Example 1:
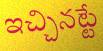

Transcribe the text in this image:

ఇచ్చినట్టే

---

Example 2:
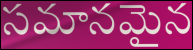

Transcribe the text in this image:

సమానమైన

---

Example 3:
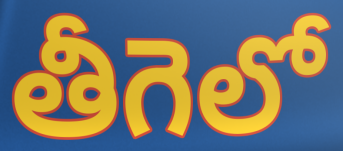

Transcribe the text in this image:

తీగెలో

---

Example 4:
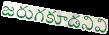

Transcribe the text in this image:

జరుగకూడనివి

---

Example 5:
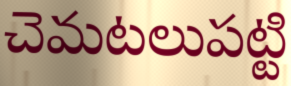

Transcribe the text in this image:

చెమటలుపట్టి